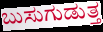
ಬುಸುಗುಡುತ್ತ